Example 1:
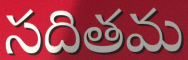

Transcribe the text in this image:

సదితమ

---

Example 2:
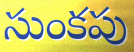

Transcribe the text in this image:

సుంకపు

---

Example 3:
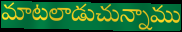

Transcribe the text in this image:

మాటలాడుచున్నాము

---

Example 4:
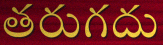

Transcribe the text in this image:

తరుగదు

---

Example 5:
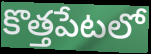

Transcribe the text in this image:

కొత్తపేటలో